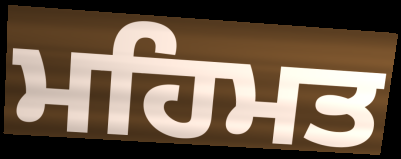
ਮਹਿਮਤ